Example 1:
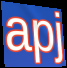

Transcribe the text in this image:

apj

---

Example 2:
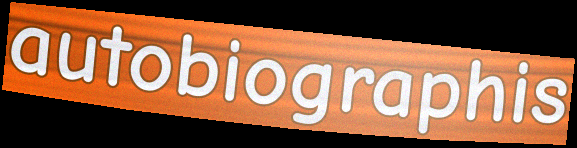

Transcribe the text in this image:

autobiographis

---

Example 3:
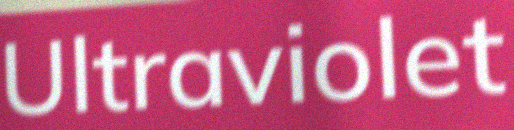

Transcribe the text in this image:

Ultraviolet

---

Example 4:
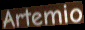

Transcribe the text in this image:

Artemio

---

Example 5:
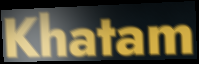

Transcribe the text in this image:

Khatam